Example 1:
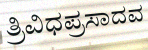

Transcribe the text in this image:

ತ್ರಿವಿಧಪ್ರಸಾದವ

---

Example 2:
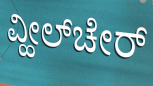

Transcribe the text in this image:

ವ್ಹೀಲ್‌ಚೇರ್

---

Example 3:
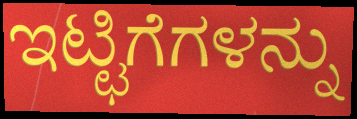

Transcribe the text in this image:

ಇಟ್ಟಿಗೆಗಳನ್ನು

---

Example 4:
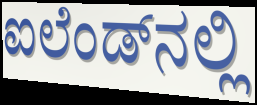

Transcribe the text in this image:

ಐಲೆಂಡ್‌ನಲ್ಲಿ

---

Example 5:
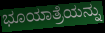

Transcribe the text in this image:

ಭೂಯಾತ್ರೆಯನ್ನು